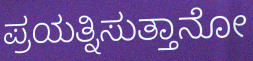
ಪ್ರಯತ್ನಿಸುತ್ತಾನೋ